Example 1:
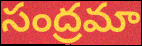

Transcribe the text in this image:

సంద్రమా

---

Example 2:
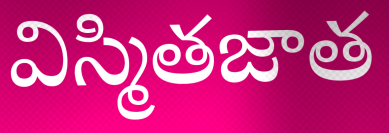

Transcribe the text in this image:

విస్మితజాత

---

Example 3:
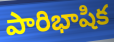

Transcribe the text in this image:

పారిభాషిక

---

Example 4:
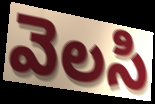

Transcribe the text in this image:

వెలసి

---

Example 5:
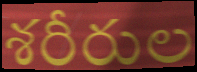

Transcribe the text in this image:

శరీరుల